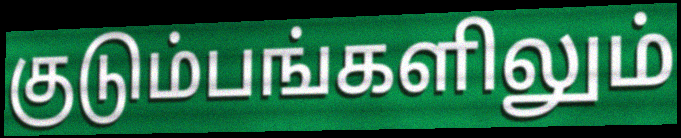
குடும்பங்களிலும்